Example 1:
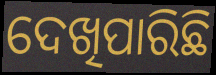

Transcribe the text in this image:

ଦେଖିପାରିଛି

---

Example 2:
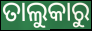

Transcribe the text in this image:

ତାଲୁକାରୁ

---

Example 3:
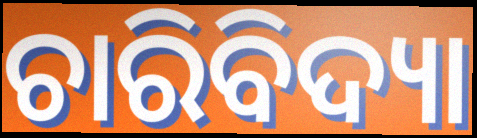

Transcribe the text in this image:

ଚାରିବିଦ୍ୟା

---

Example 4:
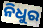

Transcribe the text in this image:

ନିଧୁର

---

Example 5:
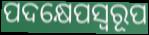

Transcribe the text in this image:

ପଦକ୍ଷେପସ୍ଵରୂପ